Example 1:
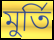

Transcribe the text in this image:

মুৰ্তি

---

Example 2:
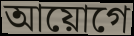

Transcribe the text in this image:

আয়োগে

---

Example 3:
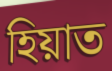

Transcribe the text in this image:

হিয়াত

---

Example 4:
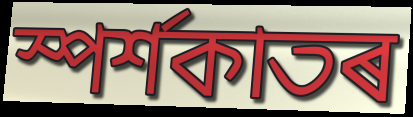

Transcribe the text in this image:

স্পৰ্শকাতৰ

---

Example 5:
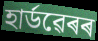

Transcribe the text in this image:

হাৰ্ডৱেৰৰ